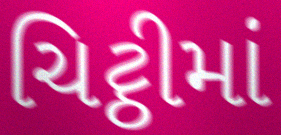
ચિટ્ઠીમાં